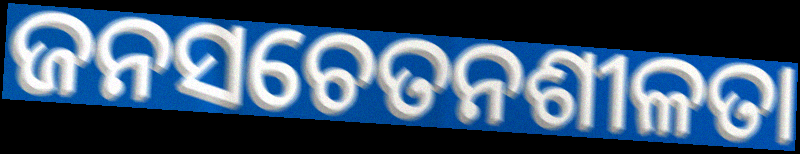
ଜନସଚେତନଶୀଳତା